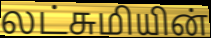
லட்சுமியின்